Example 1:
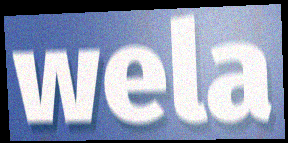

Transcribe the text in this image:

wela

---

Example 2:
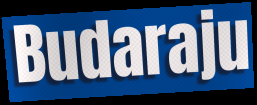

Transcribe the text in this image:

Budaraju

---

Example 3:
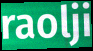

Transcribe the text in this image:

raolji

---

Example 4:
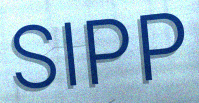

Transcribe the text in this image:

SIPP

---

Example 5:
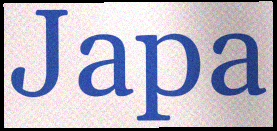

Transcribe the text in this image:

Japa